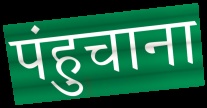
पंहुचाना